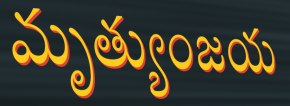
మృత్యుంజయ